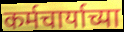
कर्मचार्याच्या